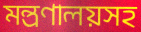
মন্ত্রণালয়সহ